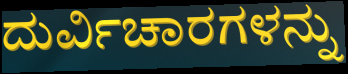
ದುರ್ವಿಚಾರಗಳನ್ನು